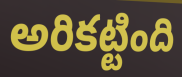
అరికట్టింది